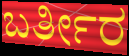
ಬರ್ತೀರ